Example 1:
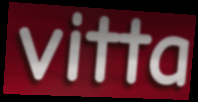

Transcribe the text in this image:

vitta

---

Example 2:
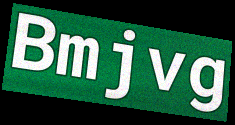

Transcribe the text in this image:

Bmjvg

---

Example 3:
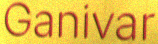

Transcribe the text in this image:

Ganivar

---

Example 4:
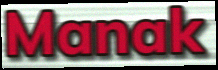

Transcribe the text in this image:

Manak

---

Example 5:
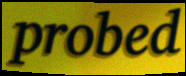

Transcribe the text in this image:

probed